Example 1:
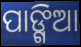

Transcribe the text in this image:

ପାଙ୍ଗିଆ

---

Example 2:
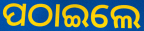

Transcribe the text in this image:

ପଠାଇଲେ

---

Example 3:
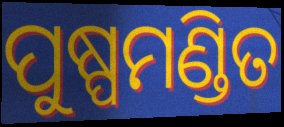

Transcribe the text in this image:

ପୁଷ୍ପମଣ୍ଡିତ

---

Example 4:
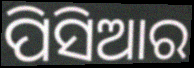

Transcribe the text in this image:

ପିସିଆର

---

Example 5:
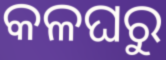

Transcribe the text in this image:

କଳଘରୁ